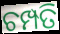
ଚମ୍ପତି